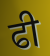
ਫੀ